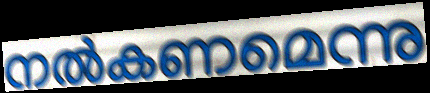
നൽകണമെന്നു